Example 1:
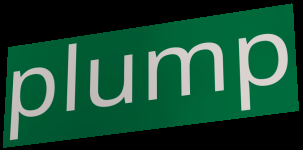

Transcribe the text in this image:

plump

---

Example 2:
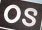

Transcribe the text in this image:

os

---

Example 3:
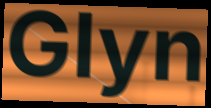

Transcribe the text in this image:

Glyn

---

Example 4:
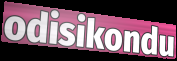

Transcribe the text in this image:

odisikondu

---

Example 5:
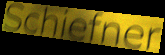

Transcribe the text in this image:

Schiefner